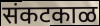
संकटकाळ